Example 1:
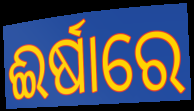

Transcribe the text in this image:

ଈର୍ଷାରେ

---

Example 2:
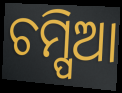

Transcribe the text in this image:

ଚମ୍ପିଆ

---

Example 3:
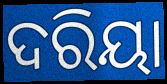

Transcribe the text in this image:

ଦରିୟା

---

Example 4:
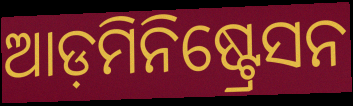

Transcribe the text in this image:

ଆଡ଼ମିନିଷ୍ଟ୍ରେସନ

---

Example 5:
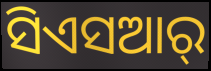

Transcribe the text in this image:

ସିଏସଆର୍